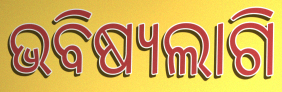
ଭବିଷ୍ୟଲାଗି